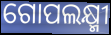
ଗୋପଲକ୍ଷ୍ମୀ